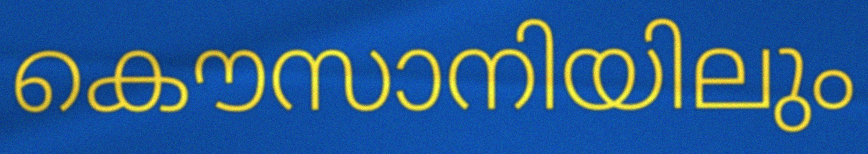
കൌസാനിയിലും